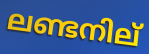
ലണ്ടനില്